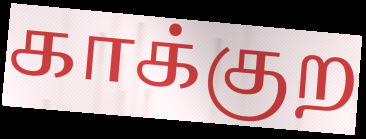
காக்குற